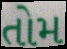
તોમ